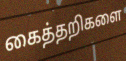
கைத்தறிகளை